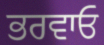
ਭਰਵਾਓ